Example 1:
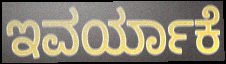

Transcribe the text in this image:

ಇವರ್ಯಾಕೆ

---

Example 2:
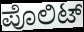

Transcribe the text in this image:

ಪೊಲಿಟ್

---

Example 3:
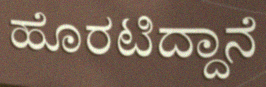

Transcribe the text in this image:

ಹೊರಟಿದ್ದಾನೆ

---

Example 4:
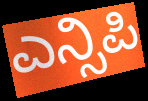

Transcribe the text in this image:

ಎನ್ಸಿಪಿ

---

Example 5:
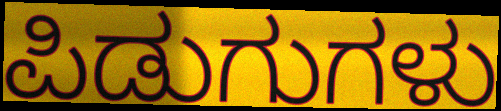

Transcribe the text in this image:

ಪಿಡುಗುಗಳು